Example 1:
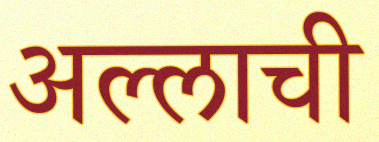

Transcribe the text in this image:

अल्लाची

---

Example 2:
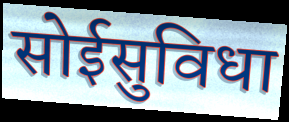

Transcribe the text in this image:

सोईसुविधा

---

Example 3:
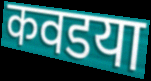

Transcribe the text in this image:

कवडया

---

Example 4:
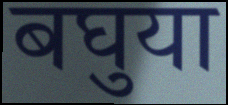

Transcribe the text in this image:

बघुया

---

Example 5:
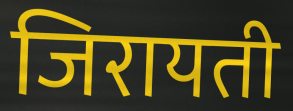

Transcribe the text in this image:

जिरायती